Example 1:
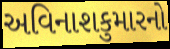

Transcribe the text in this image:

અવિનાશકુમારનો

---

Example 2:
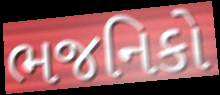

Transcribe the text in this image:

ભજનિકો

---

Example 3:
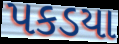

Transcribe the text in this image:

પકડયા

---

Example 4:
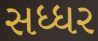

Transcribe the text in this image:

સધ્ધર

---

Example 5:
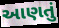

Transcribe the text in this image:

આણતું